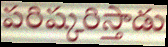
పరిష్కరిస్తాడు